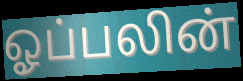
ஓப்பலின்